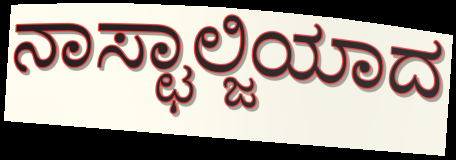
ನಾಸ್ಟಾಲ್ಜಿಯಾದ